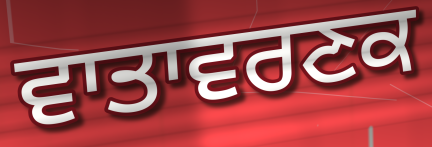
ਵਾਤਾਵਰਣਕ